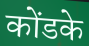
कोंडके